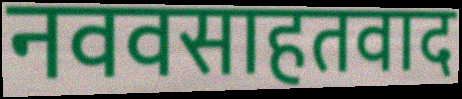
नववसाहतवाद